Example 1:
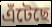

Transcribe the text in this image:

এঁটেছে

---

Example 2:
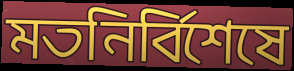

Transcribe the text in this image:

মতনির্বিশেষে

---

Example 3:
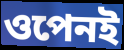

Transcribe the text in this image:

ওপেনই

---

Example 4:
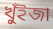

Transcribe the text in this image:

খুঁইজা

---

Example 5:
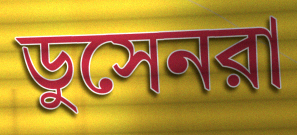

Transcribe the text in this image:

ডুসেনরা